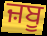
ਜ਼ਬੂ